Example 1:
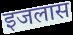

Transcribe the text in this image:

इजलास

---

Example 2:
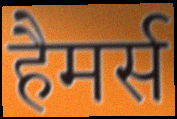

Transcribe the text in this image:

हैमर्स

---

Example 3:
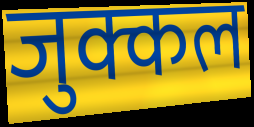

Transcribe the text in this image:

जुक्कल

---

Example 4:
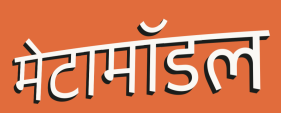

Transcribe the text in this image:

मेटामॉडल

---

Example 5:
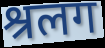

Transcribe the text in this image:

श्रलग